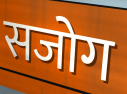
सजोग